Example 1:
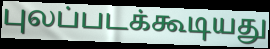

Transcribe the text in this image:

புலப்படக்கூடியது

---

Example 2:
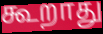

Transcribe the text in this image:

கூறாது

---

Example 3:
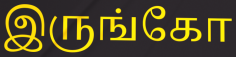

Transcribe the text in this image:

இருங்கோ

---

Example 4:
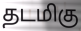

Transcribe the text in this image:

தடமிகு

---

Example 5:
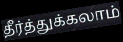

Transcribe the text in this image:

தீர்த்துக்கலாம்